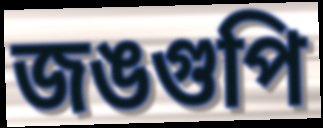
জঙগুপি